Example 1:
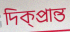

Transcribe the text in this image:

দিক্‌প্রান্ত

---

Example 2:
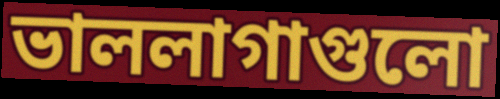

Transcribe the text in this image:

ভাললাগাগুলো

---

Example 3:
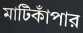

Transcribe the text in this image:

মাটিকাঁপার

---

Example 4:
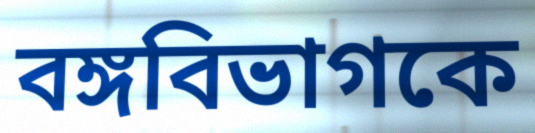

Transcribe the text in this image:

বঙ্গবিভাগকে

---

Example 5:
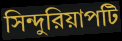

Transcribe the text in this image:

সিন্দুরিয়াপটি